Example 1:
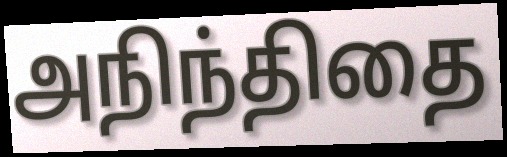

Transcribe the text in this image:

அநிந்திதை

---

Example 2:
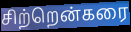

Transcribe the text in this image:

சிற்றென்கரை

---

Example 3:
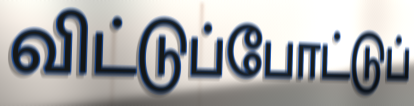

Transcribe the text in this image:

விட்டுப்போட்டுப்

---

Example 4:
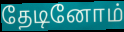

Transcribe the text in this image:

தேடினோம்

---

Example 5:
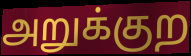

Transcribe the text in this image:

அறுக்குற